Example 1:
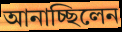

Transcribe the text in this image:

আনাচ্ছিলেন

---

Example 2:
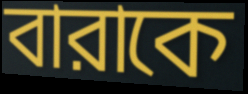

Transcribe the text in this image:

বারাকে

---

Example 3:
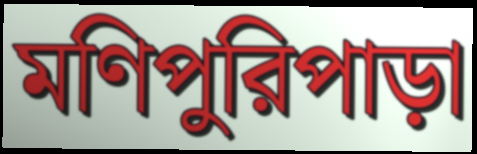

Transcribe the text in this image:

মণিপুরিপাড়া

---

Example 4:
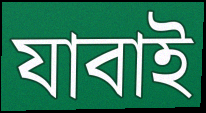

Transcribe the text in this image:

যাবাই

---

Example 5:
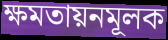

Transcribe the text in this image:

ক্ষমতায়নমূলক